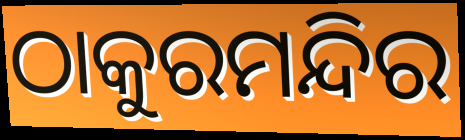
ଠାକୁରମନ୍ଦିର